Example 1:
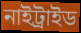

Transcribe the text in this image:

নাইট্রাইড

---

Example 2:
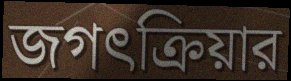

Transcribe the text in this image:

জগৎক্রিয়ার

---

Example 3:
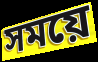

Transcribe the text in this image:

সময়ে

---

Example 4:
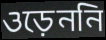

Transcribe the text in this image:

ওড়েননি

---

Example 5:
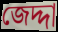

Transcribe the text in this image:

জেদ্দা